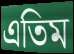
এতিম